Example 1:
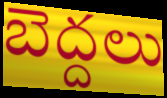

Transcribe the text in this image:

బెద్దలు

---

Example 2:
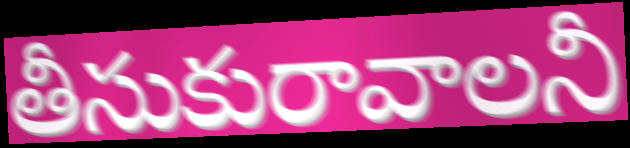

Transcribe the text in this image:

తీసుకురావాలనీ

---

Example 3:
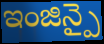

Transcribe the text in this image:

ఇంజిన్పై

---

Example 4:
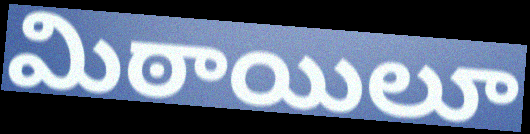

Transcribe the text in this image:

మిఠాయిలూ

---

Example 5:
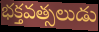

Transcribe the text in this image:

భక్తవత్సలుడు